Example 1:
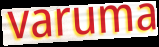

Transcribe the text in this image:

varuma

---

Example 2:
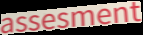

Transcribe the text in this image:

assesment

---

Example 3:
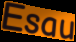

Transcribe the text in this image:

Esau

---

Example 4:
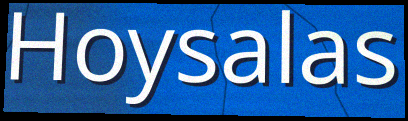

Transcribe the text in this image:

Hoysalas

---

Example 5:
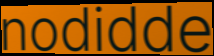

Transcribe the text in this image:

nodidde